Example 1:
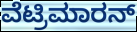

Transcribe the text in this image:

ವೆಟ್ರಿಮಾರನ್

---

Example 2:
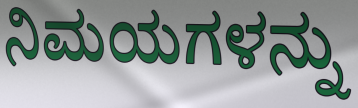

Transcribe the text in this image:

ನಿಮಯಗಳನ್ನು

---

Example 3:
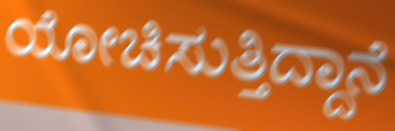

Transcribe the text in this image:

ಯೋಚಿಸುತ್ತಿದ್ದಾನೆ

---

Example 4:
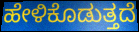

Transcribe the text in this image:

ಹೇಳಿಕೊಡುತ್ತದೆ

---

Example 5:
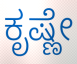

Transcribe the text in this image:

ಕೃಷ್ಣೇ